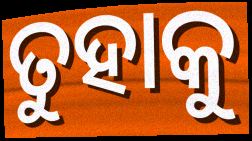
ତୁହାକୁ